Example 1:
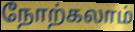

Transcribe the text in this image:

நோற்கலாம்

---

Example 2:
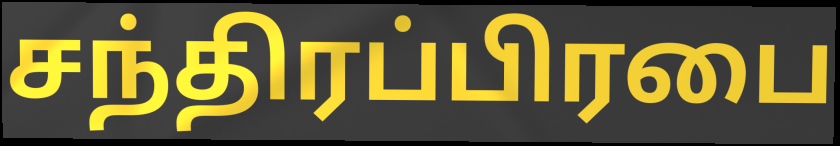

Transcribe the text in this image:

சந்திரப்பிரபை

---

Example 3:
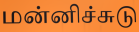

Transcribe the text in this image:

மன்னிச்சுடு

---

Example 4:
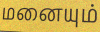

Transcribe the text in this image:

மனையும்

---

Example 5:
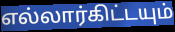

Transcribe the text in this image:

எல்லார்கிட்டயும்